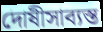
দোষীসাব্যস্ত